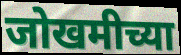
जोखमीच्या